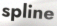
spline